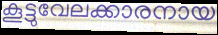
കൂട്ടുവേലക്കാരനായ